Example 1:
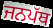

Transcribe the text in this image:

ਜਨਪੱਥ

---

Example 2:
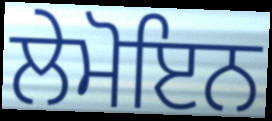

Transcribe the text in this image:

ਲੇਮੋਇਨ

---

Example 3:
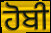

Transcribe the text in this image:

ਹੋਬੀ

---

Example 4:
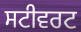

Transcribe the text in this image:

ਸਟੀਵਰਟ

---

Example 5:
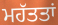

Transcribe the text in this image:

ਮਹੱਤਤਾਂ